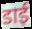
डाई